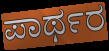
ಪಾರ್ಥರ